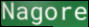
Nagore